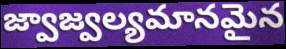
జ్వాజ్వల్యమానమైన